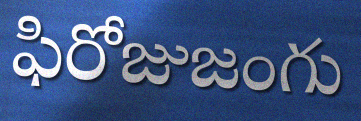
ఫిరోజుజంగు